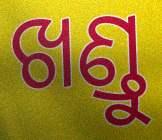
ଖଣ୍ଡୁ